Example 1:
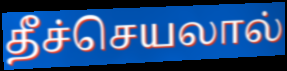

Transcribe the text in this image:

தீச்செயலால்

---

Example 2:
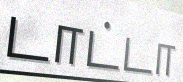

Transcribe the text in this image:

டாட்டா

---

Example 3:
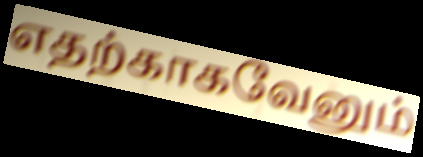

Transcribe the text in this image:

எதற்காகவேனும்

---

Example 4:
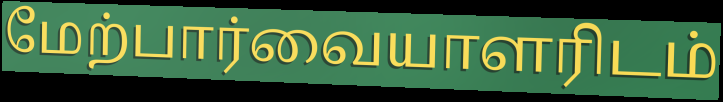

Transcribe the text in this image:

மேற்பார்வையாளரிடம்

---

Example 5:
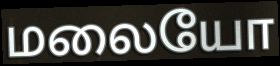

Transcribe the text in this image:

மலையோ